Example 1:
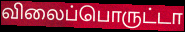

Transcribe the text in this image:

விலைப்பொருட்டா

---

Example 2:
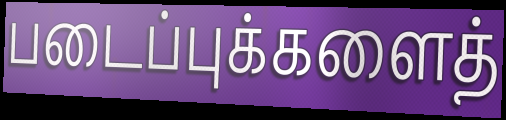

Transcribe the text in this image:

படைப்புக்களைத்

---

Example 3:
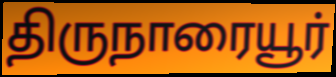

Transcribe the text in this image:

திருநாரையூர்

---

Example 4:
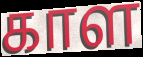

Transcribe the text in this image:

காள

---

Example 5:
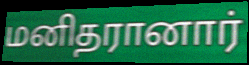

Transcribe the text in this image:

மனிதரானார்